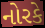
નોરકે